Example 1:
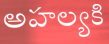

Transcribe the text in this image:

అహల్యకి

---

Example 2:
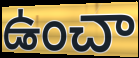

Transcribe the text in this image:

ఉంచా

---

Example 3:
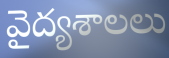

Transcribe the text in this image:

వైద్యశాలలు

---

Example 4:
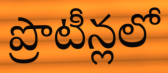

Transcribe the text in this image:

ప్రొటీన్లలో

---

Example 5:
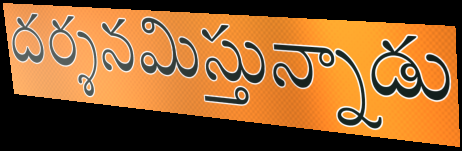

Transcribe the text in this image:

దర్శనమిస్తున్నాడు